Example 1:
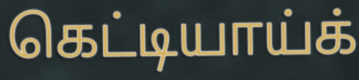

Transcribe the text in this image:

கெட்டியாய்க்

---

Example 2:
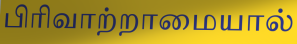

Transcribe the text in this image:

பிரிவாற்றாமையால்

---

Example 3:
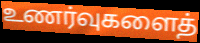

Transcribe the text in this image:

உணர்வுகளைத்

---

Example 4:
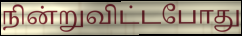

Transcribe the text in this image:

நின்றுவிட்டபோது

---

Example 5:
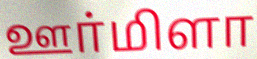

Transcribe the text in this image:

ஊர்மிளா